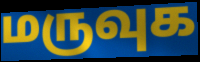
மருவுக